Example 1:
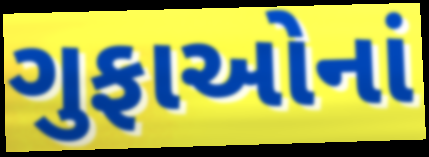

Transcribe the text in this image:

ગુફાઓનાં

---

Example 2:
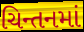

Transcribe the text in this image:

ચિન્તનમાં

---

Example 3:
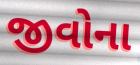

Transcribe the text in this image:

જીવોના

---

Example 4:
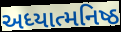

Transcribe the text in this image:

અધ્યાત્મનિષ્ઠ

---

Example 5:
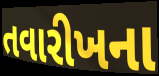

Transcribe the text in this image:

તવારીખના